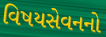
વિષયસેવનનો